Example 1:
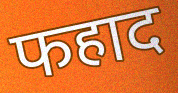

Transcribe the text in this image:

फहाद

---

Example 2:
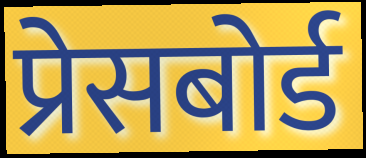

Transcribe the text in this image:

प्रेसबोर्ड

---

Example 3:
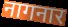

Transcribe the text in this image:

नागनार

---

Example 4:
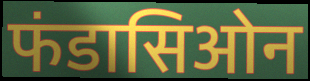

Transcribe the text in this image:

फंडासिओन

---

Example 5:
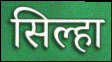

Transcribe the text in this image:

सिल्हा